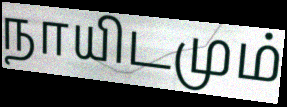
நாயிடமும்